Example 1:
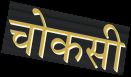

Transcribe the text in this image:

चोकसी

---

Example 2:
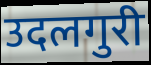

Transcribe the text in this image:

उदलगुरी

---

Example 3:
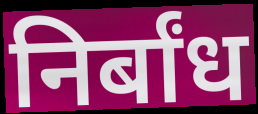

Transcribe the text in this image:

निर्बांध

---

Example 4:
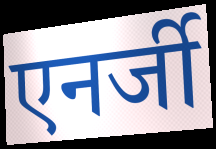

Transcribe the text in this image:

एनर्जी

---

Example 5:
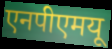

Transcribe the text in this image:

एनपीएमयू